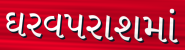
ઘરવપરાશમાં